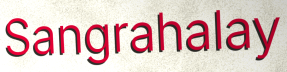
Sangrahalay